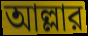
আল্লার